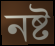
নষ্ট